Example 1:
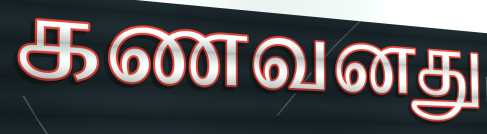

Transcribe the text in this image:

கணவனது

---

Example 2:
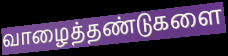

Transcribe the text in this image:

வாழைத்தண்டுகளை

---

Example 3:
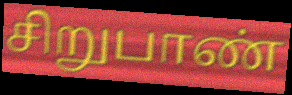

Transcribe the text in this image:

சிறுபாண்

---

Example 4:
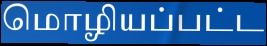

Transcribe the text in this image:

மொழியப்பட்ட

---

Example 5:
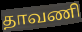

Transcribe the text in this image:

தாவணி